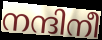
നന്ദിനീ